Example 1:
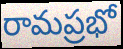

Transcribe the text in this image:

రామప్రభో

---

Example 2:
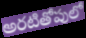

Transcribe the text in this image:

అరటితోపులో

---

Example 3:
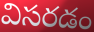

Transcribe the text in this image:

విసరడం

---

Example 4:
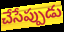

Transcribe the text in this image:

చేసేప్పుడు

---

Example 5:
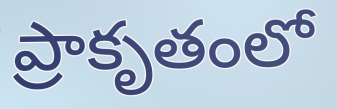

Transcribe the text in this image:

ప్రాకృతంలో